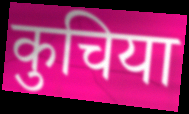
कुचिया